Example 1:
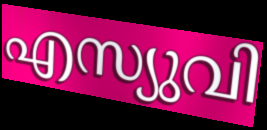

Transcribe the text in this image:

എസ്യുവി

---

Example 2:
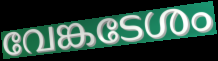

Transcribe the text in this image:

വേങ്കടേശം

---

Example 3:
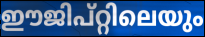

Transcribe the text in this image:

ഈജിപ്റ്റിലെയും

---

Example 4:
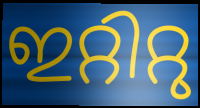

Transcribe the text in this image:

ഇറ്റിറ്റു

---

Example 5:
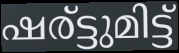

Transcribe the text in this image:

ഷര്ട്ടുമിട്ട്